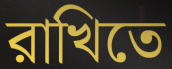
রাখিতে